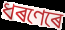
ধৰণেৰে